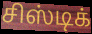
சிஸ்டிக்